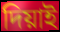
দিয়াই